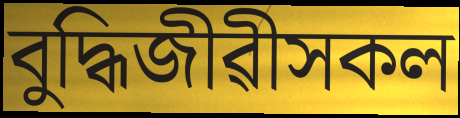
বুদ্ধিজীৱীসকল